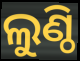
ଲୁଣ୍ଠି